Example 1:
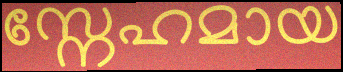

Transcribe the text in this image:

സ്നേഹമായ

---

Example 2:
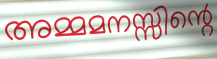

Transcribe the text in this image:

അമ്മമനസ്സിന്റെ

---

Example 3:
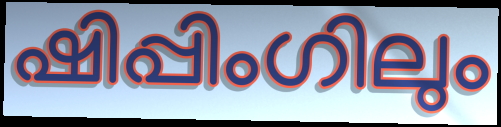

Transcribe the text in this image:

ഷിപ്പിംഗിലും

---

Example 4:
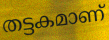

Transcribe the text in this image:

തട്ടകമാണ്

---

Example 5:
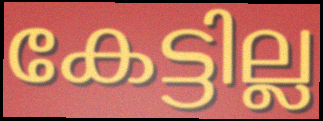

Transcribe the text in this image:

കേട്ടില്ല